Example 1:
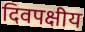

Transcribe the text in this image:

दिवपक्षीय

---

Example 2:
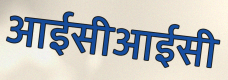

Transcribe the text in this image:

आईसीआईसी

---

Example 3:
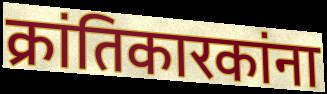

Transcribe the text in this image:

क्रांतिकारकांना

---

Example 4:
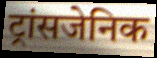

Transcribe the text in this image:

ट्रांसजेनिक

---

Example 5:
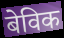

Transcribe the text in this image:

बेविक